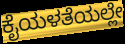
ಕೈಯಳತೆಯಲ್ಲೇ